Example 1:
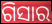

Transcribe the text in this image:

ଗିସାର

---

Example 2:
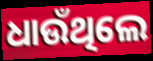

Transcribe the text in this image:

ଧାଉଁଥିଲେ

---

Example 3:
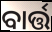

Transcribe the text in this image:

ବାର୍ତ୍ତ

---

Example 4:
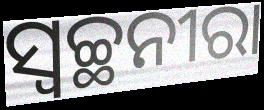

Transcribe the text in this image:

ସ୍ବଚ୍ଛନୀରା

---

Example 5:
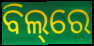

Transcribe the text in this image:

ବିଲ୍‌ରେ